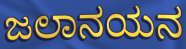
ಜಲಾನಯನ